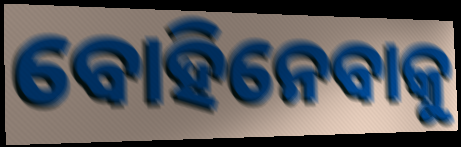
ବୋହିନେବାକୁ